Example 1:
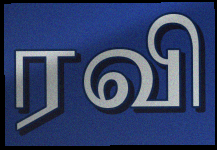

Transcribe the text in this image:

ரவி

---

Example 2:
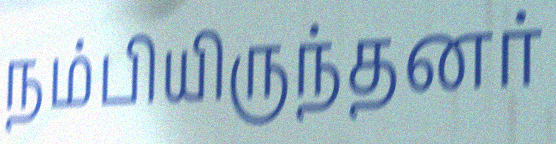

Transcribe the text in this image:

நம்பியிருந்தனர்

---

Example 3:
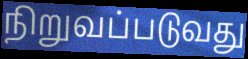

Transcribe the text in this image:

நிறுவப்படுவது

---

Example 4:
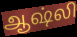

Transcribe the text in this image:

ஆஷ்லி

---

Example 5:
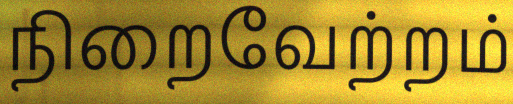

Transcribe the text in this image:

நிறைவேற்றம்